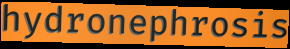
hydronephrosis